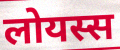
लोयस्स